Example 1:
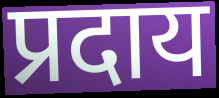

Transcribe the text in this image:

प्रदाय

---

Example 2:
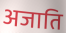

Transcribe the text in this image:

अजाति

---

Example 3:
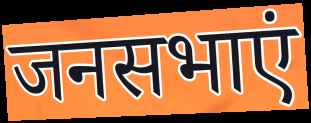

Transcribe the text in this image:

जनसभाएं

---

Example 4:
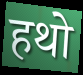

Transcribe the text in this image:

हथो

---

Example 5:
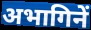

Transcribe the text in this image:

अभागिनें